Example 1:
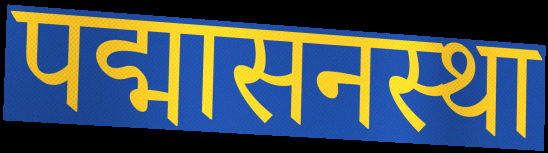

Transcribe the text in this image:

पद्मासनस्था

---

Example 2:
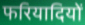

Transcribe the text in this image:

फरियादियों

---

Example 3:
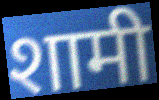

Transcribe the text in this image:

शामी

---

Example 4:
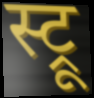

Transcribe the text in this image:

स्ट्रू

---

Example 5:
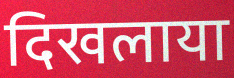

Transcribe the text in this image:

दिखलाया